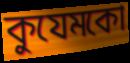
কুযেমকো